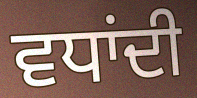
ਵਧਾਂਦੀ